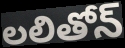
లలితోన్